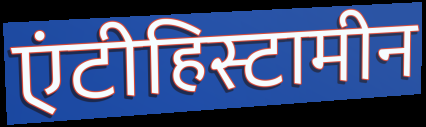
एंटीहिस्टामीन